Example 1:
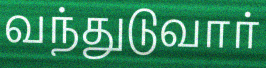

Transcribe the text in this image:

வந்துடுவார்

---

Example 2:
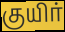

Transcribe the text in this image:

குயிர்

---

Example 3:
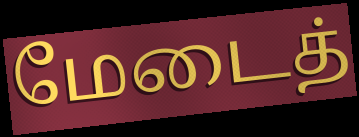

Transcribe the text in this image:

மேடைத்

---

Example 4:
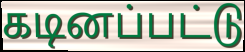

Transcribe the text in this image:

கடினப்பட்டு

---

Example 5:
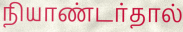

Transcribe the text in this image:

நியாண்டர்தால்